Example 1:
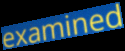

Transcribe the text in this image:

examined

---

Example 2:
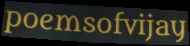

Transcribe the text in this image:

poemsofvijay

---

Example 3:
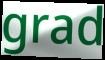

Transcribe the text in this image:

grad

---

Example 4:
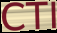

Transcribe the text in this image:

CTI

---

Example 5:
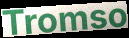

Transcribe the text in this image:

Tromso